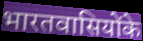
भारतवासियोंके